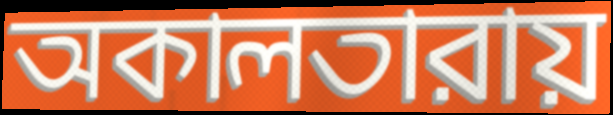
অকালতারায়